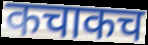
कचाकच